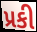
પ્રકી